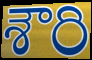
శౌరి